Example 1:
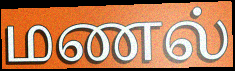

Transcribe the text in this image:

மணல்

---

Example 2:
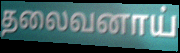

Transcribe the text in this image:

தலைவனாய்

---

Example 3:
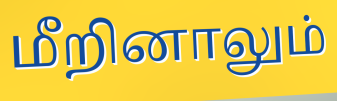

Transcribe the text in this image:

மீறினாலும்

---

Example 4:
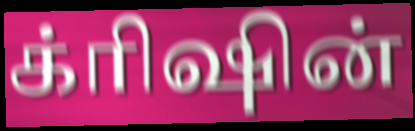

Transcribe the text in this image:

க்ரிஷின்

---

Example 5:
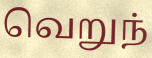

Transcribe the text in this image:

வெறுந்